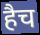
हैच